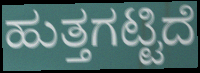
ಹುತ್ತಗಟ್ಟಿದೆ